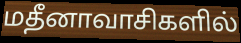
மதீனாவாசிகளில்